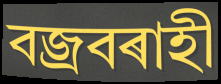
বজ্ৰবৰাহী